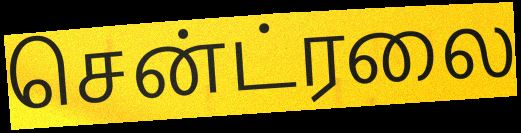
சென்ட்ரலை